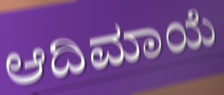
ಆದಿಮಾಯೆ